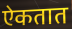
ऐकतात